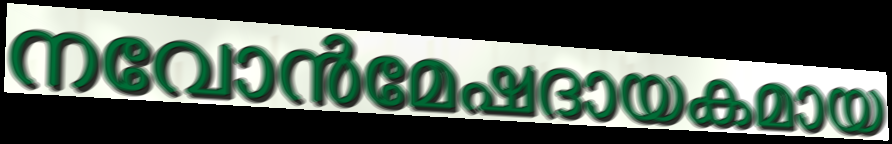
നവോൻമേഷദായകമായ